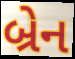
બ્રેન